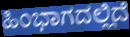
ಹಿಂಭಾಗದಲ್ಲಿದೆ